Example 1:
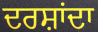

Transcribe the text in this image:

ਦਰਸ਼ਾਂਦਾ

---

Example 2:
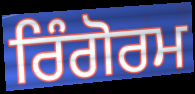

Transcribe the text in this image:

ਰਿੰਗੋਰਮ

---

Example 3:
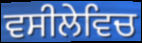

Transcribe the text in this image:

ਵਸੀਲੇਵਿਚ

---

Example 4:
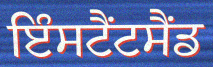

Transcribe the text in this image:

ਇੰਸਟੈਂਟਸੈਂਡ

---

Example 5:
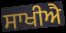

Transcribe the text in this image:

ਸਾਖੀਐ